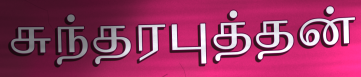
சுந்தரபுத்தன்